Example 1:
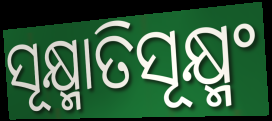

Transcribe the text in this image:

ସୂକ୍ଷ୍ମାତିସୂକ୍ଷ୍ମଂ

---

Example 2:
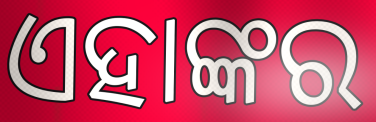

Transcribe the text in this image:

ଏହାଙ୍କର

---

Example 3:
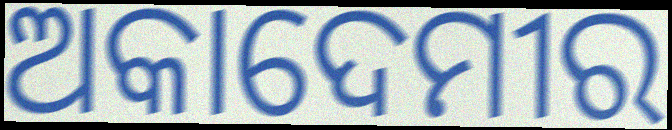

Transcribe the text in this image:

ଅକାଦେମୀର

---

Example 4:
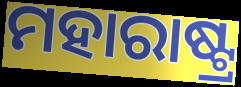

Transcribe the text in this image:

ମହାରାଷ୍ଟ୍ର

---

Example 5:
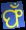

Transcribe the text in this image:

ଫଁ